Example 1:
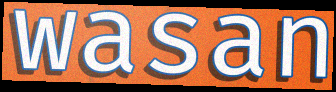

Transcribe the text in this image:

wasan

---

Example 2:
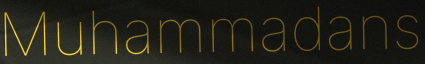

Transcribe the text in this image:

Muhammadans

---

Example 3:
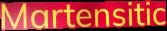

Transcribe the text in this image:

Martensitic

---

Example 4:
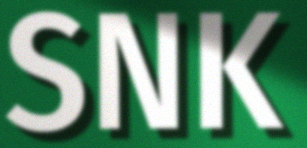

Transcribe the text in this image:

SNK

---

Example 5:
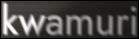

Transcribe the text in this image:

kwamuri